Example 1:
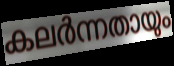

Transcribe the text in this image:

കലർന്നതായും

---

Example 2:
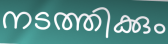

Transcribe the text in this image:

നടത്തിക്കും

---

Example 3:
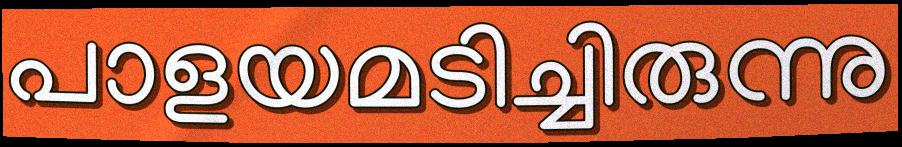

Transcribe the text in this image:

പാളയമടിച്ചിരുന്നു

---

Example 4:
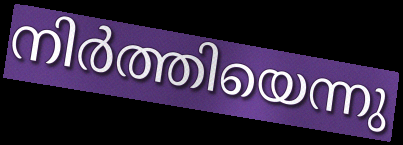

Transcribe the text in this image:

നിർത്തിയെന്നു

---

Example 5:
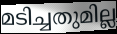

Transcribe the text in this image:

മടിച്ചതുമില്ല